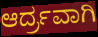
ಆರ್ದ್ರವಾಗಿ